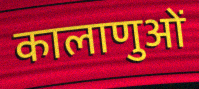
कालाणुओं